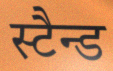
स्टैन्ड